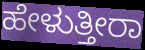
ಹೇಳುತ್ತೀರಾ